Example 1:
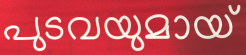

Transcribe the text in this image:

പുടവയുമായ്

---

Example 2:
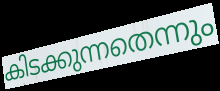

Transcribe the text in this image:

കിടക്കുന്നതെന്നും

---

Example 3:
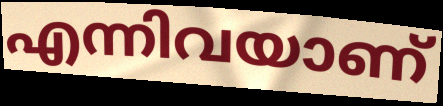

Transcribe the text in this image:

എന്നിവയാണ്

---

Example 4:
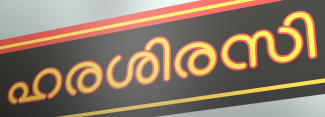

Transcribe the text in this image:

ഹരശിരസി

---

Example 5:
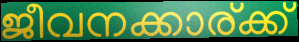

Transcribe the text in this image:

ജീവനക്കാര്ക്ക്